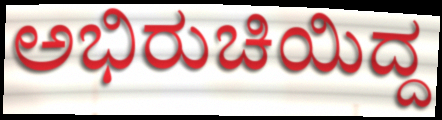
ಅಭಿರುಚಿಯಿದ್ದ